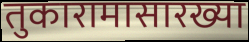
तुकारामासारख्या